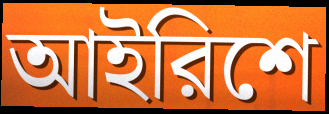
আইরিশে